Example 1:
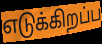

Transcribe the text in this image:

எடுக்கிறப்ப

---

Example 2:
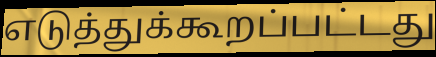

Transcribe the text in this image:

எடுத்துக்கூறப்பட்டது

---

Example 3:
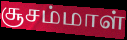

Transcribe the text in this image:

சூசம்மாள்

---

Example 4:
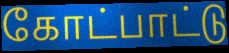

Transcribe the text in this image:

கோட்பாட்டு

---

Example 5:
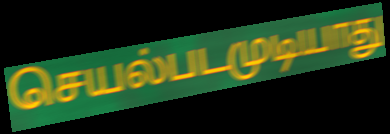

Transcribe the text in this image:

செயல்படமுடியாது